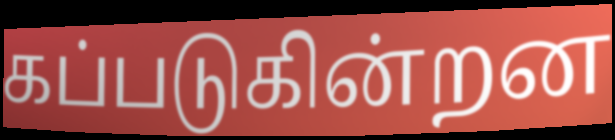
கப்படுகின்றன